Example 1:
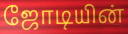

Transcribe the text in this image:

ஜோடியின்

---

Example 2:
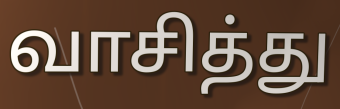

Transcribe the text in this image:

வாசித்து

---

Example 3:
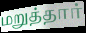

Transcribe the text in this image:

மறுத்தார்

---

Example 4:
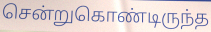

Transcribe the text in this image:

சென்றுகொண்டிருந்த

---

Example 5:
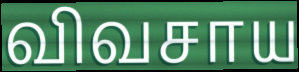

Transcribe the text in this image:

விவசாய